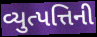
વ્યુત્પત્તિની